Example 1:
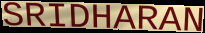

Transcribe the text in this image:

SRIDHARAN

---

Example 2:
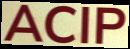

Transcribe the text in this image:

ACIP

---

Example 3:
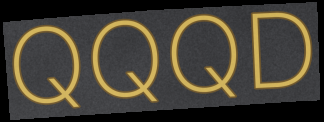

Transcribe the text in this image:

QQQD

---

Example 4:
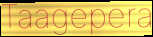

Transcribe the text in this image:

Taagepera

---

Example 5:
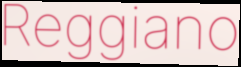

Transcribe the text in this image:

Reggiano